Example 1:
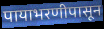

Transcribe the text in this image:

पायाभरणीपासून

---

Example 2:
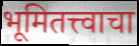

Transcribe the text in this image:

भूमितत्त्वाचा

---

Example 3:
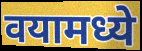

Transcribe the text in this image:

वयामध्ये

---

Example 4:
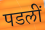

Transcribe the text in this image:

पडलीं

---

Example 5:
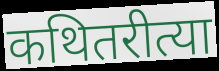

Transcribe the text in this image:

कथितरीत्या